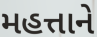
મહત્તાને